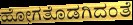
ಹೋಗತೊಡಗಿದಂತೆ